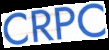
CRPC